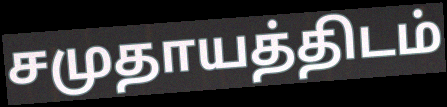
சமுதாயத்திடம்